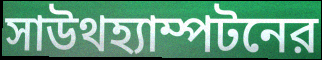
সাউথহ্যাম্পটনের